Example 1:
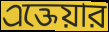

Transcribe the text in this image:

এক্তেয়ার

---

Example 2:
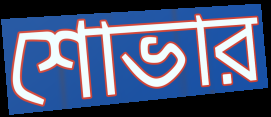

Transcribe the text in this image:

শোভার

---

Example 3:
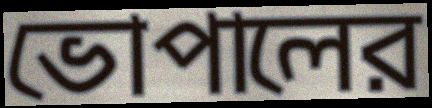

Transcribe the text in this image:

ভোপালের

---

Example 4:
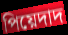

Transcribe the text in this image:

পিয়েদাদ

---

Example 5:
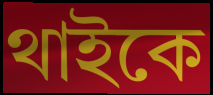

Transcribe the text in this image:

থাইকে